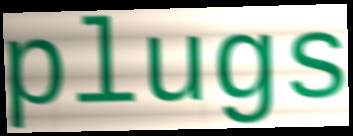
plugs